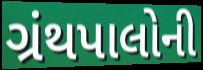
ગ્રંથપાલોની